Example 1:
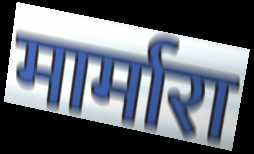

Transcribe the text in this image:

मार्मारा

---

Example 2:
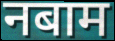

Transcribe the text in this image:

नबाम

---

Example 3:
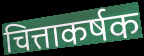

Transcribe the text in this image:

चित्ताकर्षक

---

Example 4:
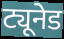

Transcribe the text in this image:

ट्यूनेड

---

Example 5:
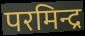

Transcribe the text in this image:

परमिन्द्र